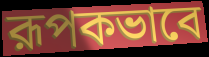
রূপকভাবে